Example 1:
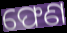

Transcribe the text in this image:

ଫେଣ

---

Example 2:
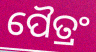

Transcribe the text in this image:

ପୈତ୍ରଂ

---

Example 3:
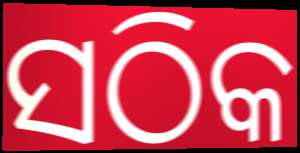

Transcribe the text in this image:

ସଠିକ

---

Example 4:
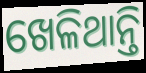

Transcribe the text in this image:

ଖେଳିଥାନ୍ତି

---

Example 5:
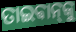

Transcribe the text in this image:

ତାଇଵାନ୍‌କୁ